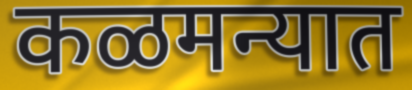
कळमन्यात